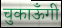
चुकाऊँगी